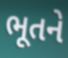
ભૂતને